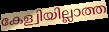
കേള്വിയില്ലാത്ത